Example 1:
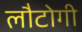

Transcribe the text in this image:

लौटोगी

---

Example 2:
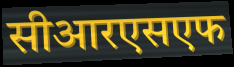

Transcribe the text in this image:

सीआरएसएफ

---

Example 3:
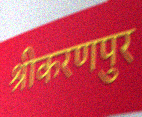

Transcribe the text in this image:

श्रीकरणपुर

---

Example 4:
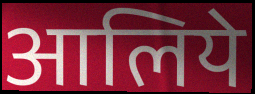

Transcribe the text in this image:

आलिये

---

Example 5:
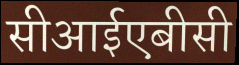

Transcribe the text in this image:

सीआईएबीसी